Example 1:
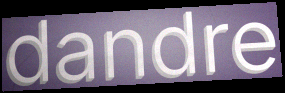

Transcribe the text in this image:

dandre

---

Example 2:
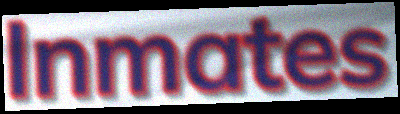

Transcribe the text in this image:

Inmates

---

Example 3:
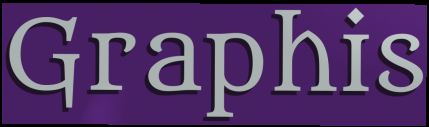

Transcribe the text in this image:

Graphis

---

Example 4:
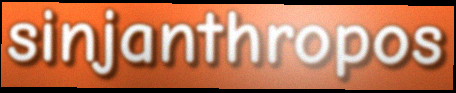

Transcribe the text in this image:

sinjanthropos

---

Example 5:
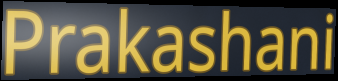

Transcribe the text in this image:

Prakashani